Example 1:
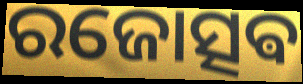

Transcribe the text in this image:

ରଜୋତ୍ସଵ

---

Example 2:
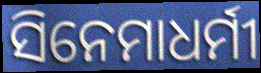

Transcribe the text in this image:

ସିନେମାଧର୍ମୀ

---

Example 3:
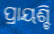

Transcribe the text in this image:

ପ୍ରାୟଶ୍ଚି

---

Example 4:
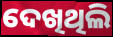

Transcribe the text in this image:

ଦେଖିଥିଲି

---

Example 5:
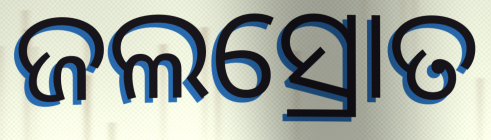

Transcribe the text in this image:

ଜଲସ୍ରୋତ